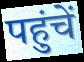
पहुंचें